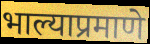
भाल्याप्रमाणे